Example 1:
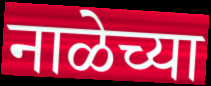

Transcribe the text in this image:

नाळेच्या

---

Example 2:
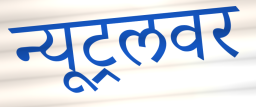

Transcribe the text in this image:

न्यूट्रलवर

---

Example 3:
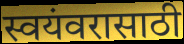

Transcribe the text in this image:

स्वयंवरासाठी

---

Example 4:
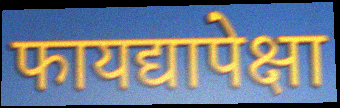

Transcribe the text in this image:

फायद्यापेक्षा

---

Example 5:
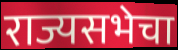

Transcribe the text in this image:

राज्यसभेचा